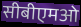
सीबीएमओ